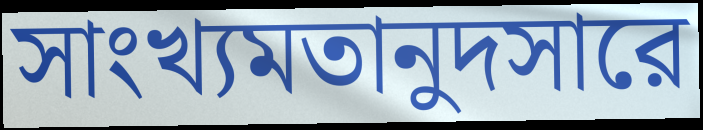
সাংখ্যমতানুদসারে